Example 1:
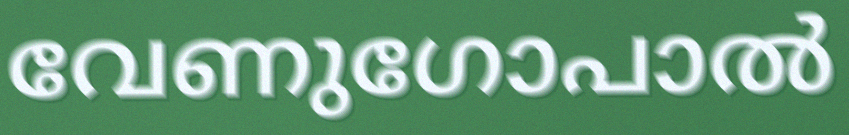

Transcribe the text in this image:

വേണുഗോപാൽ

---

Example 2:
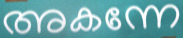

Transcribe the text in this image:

അകന്നേ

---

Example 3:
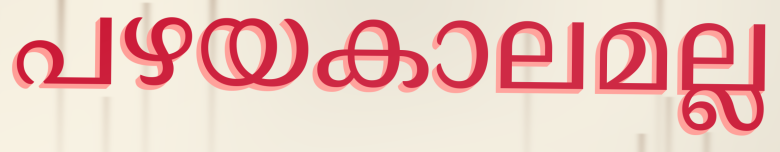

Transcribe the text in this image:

പഴയകാലമല്ല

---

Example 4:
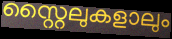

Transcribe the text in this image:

സ്റ്റൈലുകളാലും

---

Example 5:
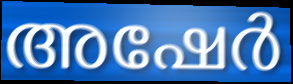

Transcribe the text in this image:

അഷേർ